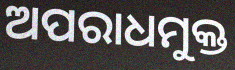
ଅପରାଧମୁକ୍ତ